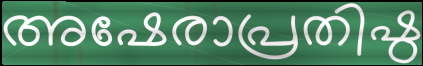
അഷേരാപ്രതിഷ്ഠ